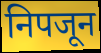
निपजून